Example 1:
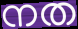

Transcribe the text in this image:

നത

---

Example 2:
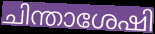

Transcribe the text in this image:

ചിന്താശേഷി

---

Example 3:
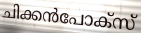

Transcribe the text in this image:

ചിക്കൻപോക്സ്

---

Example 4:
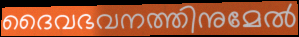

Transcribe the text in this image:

ദൈവഭവനത്തിനുമേൽ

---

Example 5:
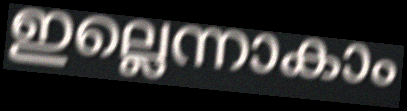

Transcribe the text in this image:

ഇല്ലെന്നാകാം